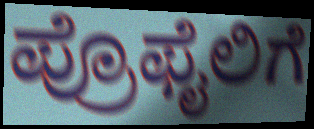
ಪ್ರೊಫೈಲಿಗೆ